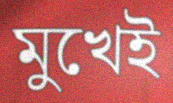
মুখেই